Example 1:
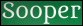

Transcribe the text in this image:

Sooper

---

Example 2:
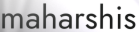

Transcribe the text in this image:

maharshis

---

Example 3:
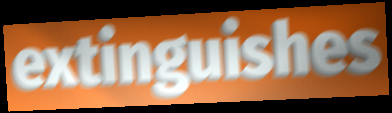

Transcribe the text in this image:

extinguishes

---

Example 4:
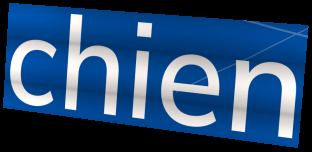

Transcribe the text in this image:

chien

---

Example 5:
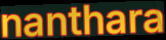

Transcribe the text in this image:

nanthara